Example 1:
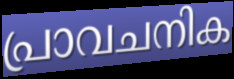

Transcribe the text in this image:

പ്രാവചനിക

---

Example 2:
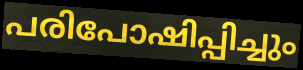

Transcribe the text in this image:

പരിപോഷിപ്പിച്ചും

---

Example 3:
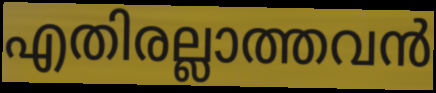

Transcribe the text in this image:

എതിരല്ലാത്തവൻ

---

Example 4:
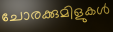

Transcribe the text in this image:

ചോരക്കുമിളുകൾ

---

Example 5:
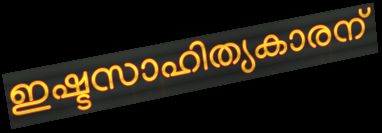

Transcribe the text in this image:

ഇഷ്ടസാഹിത്യകാരന്